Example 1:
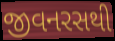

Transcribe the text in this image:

જીવનરસથી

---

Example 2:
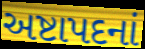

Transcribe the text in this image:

અષ્ટાપદનાં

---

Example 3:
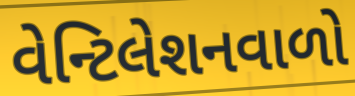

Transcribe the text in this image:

વેન્ટિલેશનવાળો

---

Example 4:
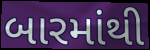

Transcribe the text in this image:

બારમાંથી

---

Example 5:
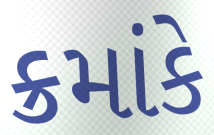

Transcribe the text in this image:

ક્રમાંકે